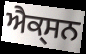
ਐਕ੍ਸਨ